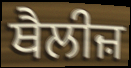
ਥੈਲੀਜ਼